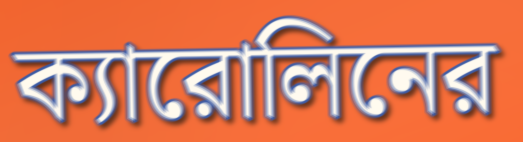
ক্যারোলিনের